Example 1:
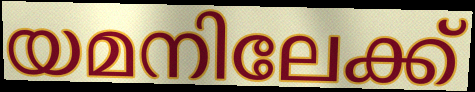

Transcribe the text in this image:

യമനിലേക്ക്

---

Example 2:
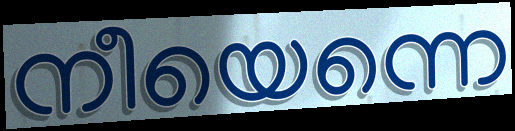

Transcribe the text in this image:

നീയെന്നെ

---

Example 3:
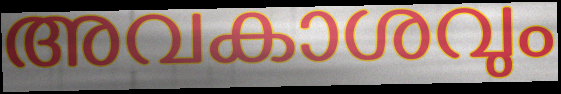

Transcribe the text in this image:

അവകാശവും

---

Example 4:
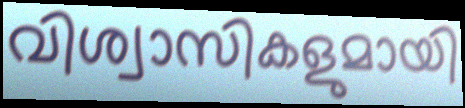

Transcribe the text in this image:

വിശ്വാസികളുമായി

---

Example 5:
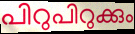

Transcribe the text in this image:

പിറുപിറുക്കും